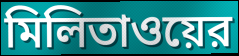
মিলিতাওয়ের